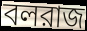
বলরাজ